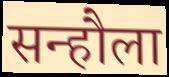
सन्हौला